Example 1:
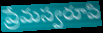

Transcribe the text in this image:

ప్రేమస్వరూపి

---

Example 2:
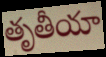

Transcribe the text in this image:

తృతీయా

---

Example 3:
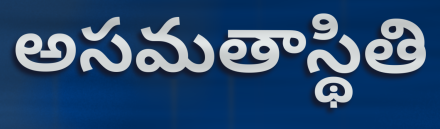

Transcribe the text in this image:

అసమతాస్థితి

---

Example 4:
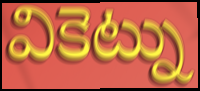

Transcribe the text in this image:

వికెట్ను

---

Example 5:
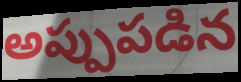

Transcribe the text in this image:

అప్పుపడిన